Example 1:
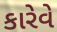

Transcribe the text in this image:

કારેવે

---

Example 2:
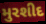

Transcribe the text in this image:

મુરશીદ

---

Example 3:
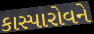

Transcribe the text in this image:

કાસ્પારોવને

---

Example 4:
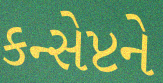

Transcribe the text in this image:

કન્સેપ્ટને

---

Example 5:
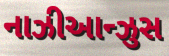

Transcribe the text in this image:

નાઝીઆન્ઝુસ